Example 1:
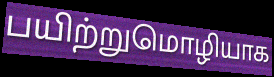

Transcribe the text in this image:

பயிற்றுமொழியாக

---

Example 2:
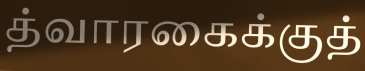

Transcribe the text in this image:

த்வாரகைக்குத்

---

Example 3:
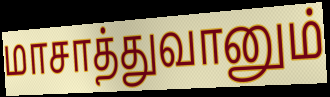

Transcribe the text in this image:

மாசாத்துவானும்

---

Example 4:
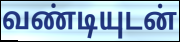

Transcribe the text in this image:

வண்டியுடன்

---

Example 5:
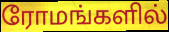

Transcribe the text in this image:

ரோமங்களில்